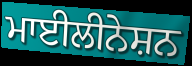
ਮਾਈਲੀਨੇਸ਼ਨ